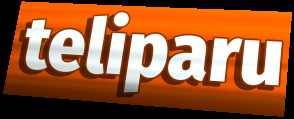
teliparu